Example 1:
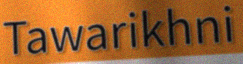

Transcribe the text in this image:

Tawarikhni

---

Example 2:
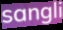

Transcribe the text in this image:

sangli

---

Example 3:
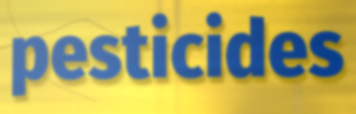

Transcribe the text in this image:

pesticides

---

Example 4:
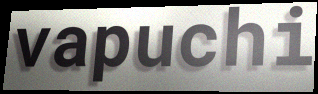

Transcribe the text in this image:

vapuchi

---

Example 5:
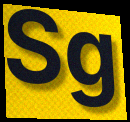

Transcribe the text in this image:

Sg